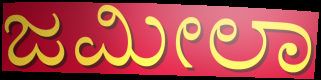
ಜಮೀಲಾ